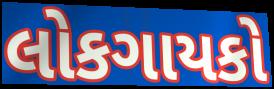
લોકગાયકો